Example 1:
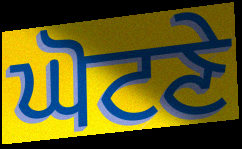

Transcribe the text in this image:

ਘੋਟਣੇ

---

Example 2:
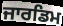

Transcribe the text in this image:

ਜਾਰਡਿਮ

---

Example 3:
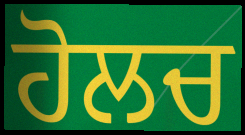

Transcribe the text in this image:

ਹੋਲਚ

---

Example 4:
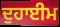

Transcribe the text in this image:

ਦੁਹਾਈਮ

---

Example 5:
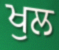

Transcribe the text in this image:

ਖੁਲ